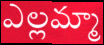
ఎల్లమ్మా